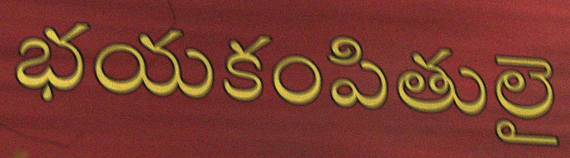
భయకంపితులై